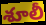
శూలీ